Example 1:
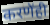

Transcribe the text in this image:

करणेंही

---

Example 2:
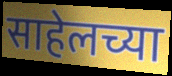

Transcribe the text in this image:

साहेलच्या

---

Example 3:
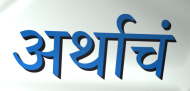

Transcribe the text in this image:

अर्थाचं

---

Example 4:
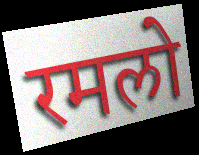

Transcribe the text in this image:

रमलो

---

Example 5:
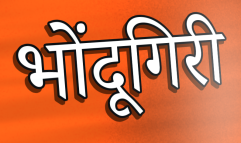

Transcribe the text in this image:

भोंदूगिरी